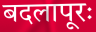
बदलापूरः